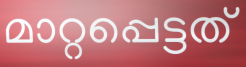
മാറ്റപ്പെട്ടത്